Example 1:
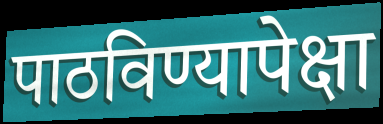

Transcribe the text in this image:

पाठविण्यापेक्षा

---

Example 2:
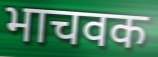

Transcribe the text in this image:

भाचवक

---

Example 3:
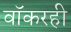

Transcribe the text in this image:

वॉकरही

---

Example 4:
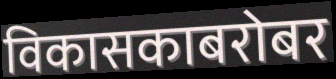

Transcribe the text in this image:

विकासकाबरोबर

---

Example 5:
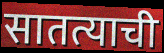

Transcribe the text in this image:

सातत्याची